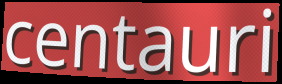
centauri